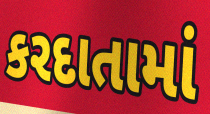
કરદાતામાં